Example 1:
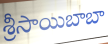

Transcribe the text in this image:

శ్రీసాయిబాబా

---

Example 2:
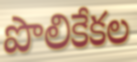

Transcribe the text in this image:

పొలికేకల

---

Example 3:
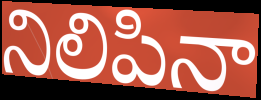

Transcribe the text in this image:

నిలిపినా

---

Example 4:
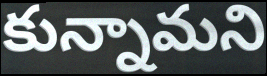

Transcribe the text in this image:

కున్నామని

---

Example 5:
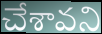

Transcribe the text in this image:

చేశావని